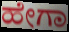
ಹೇಗಾ